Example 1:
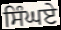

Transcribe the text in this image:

ਸਿੰਘਏ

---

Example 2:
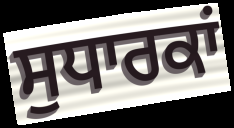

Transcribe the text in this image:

ਸੁਧਾਰਕਾਂ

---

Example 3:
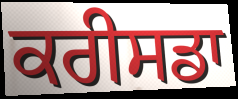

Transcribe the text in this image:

ਕਰੀਸਡਾ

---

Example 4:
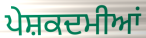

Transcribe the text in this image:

ਪੇਸ਼ਕਦਮੀਆਂ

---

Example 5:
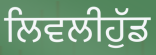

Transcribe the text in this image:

ਲਿਵਲੀਹੁੱਡ